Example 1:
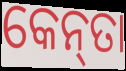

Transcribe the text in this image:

କେନ୍‌ତା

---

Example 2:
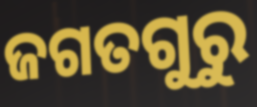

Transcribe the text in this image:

ଜଗତଗୁରୁ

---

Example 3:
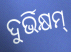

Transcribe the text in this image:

ଦୁର୍ଭିକ୍ଷମ୍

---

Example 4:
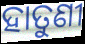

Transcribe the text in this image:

ହାତୁଣୀ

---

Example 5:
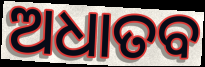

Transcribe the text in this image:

ଅଧାତବ